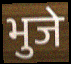
भुजे